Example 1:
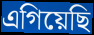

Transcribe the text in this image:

এগিয়েছি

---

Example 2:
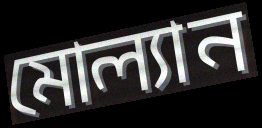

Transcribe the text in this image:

মোল্যান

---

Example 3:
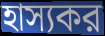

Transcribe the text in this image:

হাস্যকর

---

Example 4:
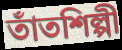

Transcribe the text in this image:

তাঁতশিল্পী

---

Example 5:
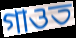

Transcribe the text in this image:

গাওত